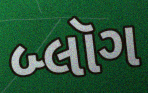
બ્લૉગ